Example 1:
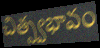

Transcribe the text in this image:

చిత్స్వభావం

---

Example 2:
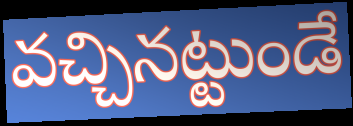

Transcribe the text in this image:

వచ్చినట్టుండే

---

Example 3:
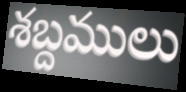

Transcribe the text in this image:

శబ్దములు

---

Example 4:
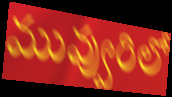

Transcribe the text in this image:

మువ్వురిలో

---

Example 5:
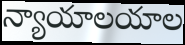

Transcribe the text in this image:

న్యాయాలయాల